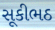
સૂકીભઠ